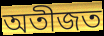
অতীজত